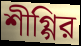
শীগ্গির